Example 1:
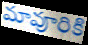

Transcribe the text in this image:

మావూరికి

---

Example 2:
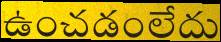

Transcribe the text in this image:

ఉంచడంలేదు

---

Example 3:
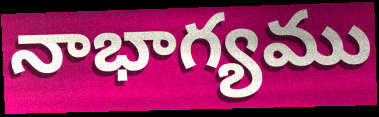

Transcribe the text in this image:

నాభాగ్యము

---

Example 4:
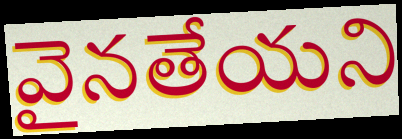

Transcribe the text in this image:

వైనతేయని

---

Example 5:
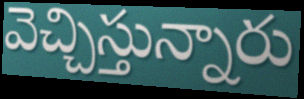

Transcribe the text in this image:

వెచ్చిస్తున్నారు